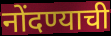
नोंदण्याची